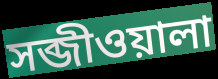
সব্জীওয়ালা